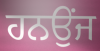
ਹਨਉਂਜ